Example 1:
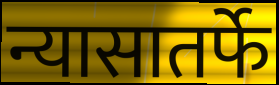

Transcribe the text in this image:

न्यासातर्फे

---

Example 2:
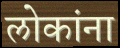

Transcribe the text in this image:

लोकांना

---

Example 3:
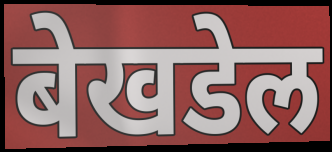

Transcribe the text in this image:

बेखडेल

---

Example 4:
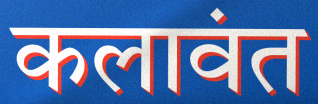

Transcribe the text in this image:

कलावंत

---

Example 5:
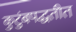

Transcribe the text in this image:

कुटुंबपद्धतीत